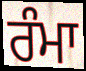
ਰੰਮਾ